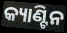
କ୍ୟାଣ୍ଟିନ